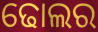
ଢୋଲର